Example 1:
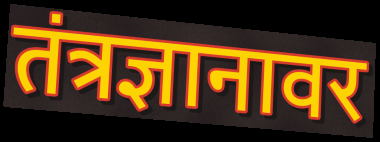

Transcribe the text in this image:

तंत्रज्ञानावर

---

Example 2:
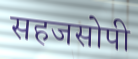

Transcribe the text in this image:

सहजसोपी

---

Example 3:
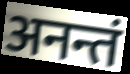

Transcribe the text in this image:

अनन्तं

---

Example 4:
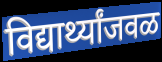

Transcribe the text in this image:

विद्यार्थ्यांजवळ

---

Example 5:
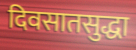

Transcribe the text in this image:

दिवसातसुद्धा